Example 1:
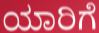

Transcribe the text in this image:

ಯಾರಿಗೆ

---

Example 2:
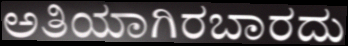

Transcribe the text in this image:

ಅತಿಯಾಗಿರಬಾರದು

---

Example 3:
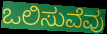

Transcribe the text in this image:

ಒಲಿಸುವೆವು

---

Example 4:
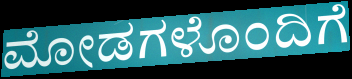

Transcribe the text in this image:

ಮೋಡಗಳೊಂದಿಗೆ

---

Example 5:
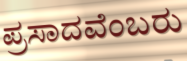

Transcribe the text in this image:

ಪ್ರಸಾದವೆಂಬರು